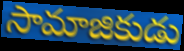
సామాజికుడు